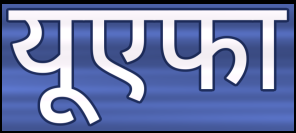
यूएफा